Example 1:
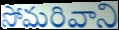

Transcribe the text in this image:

సోమరివాని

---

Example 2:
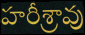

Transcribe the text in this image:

హరీశ్రావు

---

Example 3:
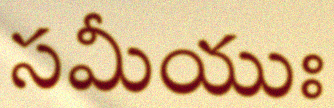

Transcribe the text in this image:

సమీయుః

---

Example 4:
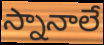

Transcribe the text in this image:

స్నానాలే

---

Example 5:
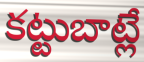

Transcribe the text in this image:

కట్టుబాట్లే